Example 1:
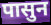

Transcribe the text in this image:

पासुन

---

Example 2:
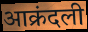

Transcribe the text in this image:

आक्रंदली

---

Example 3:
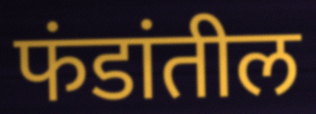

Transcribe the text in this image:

फंडांतील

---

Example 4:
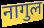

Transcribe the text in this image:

नागुल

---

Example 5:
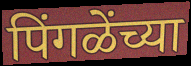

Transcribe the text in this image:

पिंगळेंच्या